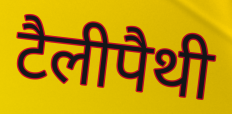
टैलीपैथी